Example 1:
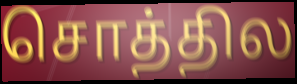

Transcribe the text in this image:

சொத்தில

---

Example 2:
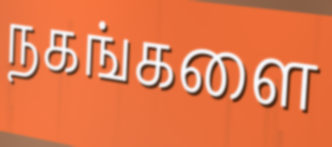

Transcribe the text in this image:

நகங்களை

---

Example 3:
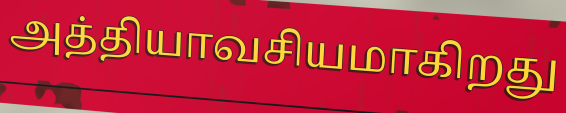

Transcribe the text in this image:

அத்தியாவசியமாகிறது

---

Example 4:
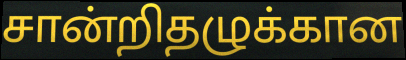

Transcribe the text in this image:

சான்றிதழுக்கான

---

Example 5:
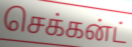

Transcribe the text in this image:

செக்கன்ட்